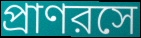
প্রাণরসে